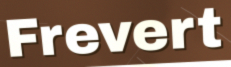
Frevert